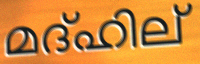
മദ്ഹില്